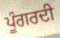
ਪੂੰਗਰਦੀ